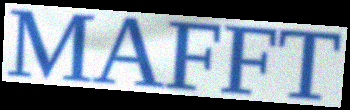
MAFFT